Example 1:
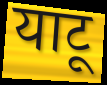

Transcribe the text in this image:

याटू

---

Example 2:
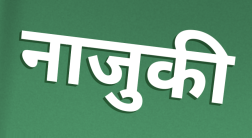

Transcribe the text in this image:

नाजुकी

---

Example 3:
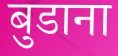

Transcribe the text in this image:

बुडाना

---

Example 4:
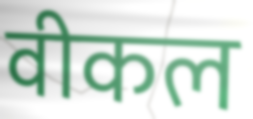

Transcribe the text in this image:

वीकल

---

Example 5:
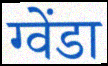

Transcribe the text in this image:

ग्वेंडा